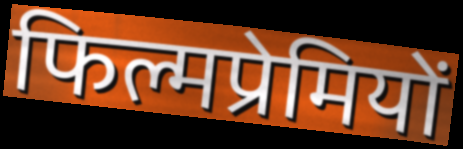
फिल्मप्रेमियों